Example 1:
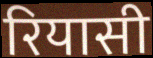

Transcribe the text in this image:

रियासी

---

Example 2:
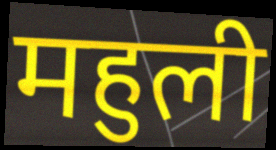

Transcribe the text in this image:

महुली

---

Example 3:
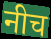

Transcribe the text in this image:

नीच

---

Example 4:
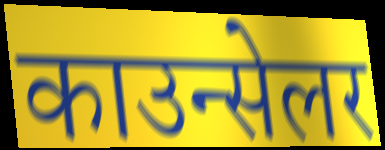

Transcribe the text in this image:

काउन्सेलर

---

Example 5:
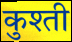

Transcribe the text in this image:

कुश्‍ती